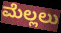
ಮೆಲ್ಲಲು